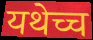
यथेच्च